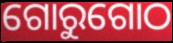
ଗୋରୁଗୋଠ